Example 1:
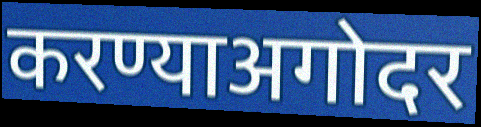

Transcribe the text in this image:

करण्याअगोदर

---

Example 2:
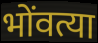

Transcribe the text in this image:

भोंवत्या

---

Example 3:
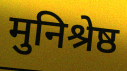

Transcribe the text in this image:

मुनिश्रेष्ठ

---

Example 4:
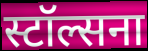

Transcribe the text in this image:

स्टॉल्सना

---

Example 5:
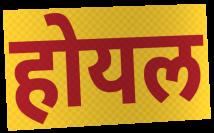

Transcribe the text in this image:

होयल